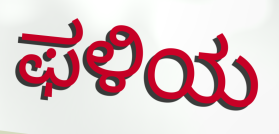
ಫಳಿಯ